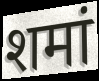
शमां